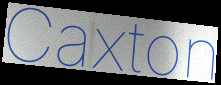
Caxton